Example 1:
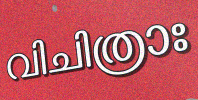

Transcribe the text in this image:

വിചിത്രാഃ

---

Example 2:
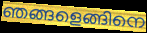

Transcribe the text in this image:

ഞങ്ങളെങ്ങിനെ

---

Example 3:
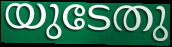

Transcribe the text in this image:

യുടേതു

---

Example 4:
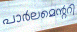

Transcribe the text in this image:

പാർലമെന്ററി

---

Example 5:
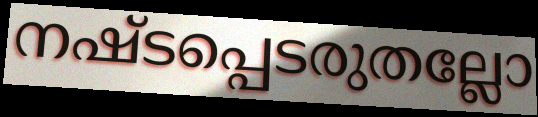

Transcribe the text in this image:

നഷ്ടപ്പെടരുതല്ലോ